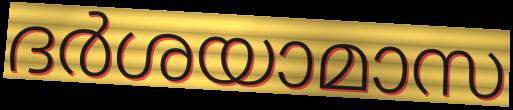
ദർശയാമാസ